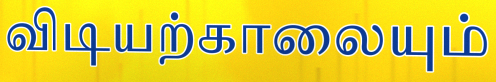
விடியற்காலையும்